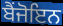
ਬੈਂਜੋਇਨ